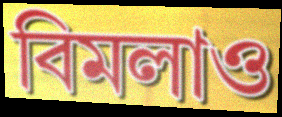
বিমলাও